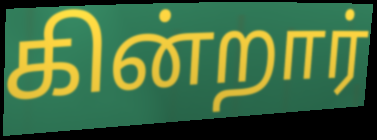
கின்றார்